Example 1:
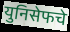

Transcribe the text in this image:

युनिसेफचे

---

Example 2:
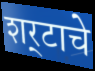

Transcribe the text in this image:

शर्टाचे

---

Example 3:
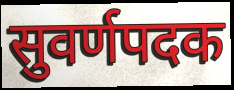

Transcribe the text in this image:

सुवर्णपदक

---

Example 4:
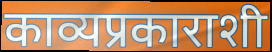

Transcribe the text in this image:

काव्यप्रकाराशी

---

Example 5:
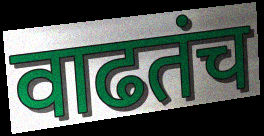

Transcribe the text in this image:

वाढतंच